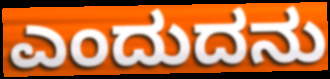
ಎಂದುದನು